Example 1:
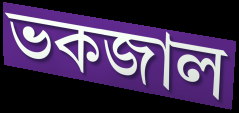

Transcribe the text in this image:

ভকজাল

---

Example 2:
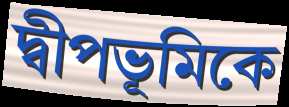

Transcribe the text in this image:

দ্বীপভূমিকে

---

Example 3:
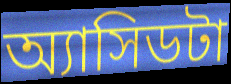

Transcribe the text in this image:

অ্যাসিডটা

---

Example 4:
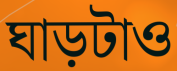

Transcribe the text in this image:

ঘাড়টাও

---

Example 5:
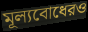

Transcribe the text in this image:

মূল্যবোধেরও